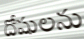
దోషులను